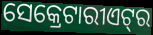
ସେକ୍ରେଟାରୀଏଟ୍‍ର